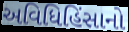
અવિધિહિંસાનો